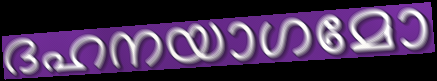
ദഹനയാഗമോ